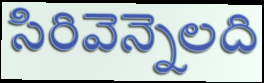
సిరివెన్నెలది